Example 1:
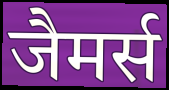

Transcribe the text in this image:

जैमर्स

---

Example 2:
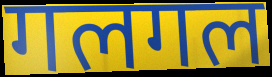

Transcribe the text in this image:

गलगल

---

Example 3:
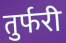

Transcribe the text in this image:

तुर्फरी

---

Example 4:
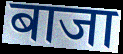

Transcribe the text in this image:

बाजा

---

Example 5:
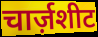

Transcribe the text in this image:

चार्ज़शीट